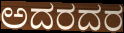
ಅದರದರ